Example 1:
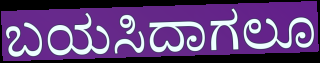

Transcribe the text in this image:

ಬಯಸಿದಾಗಲೂ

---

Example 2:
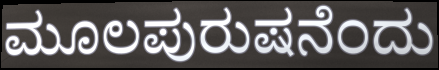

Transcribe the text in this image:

ಮೂಲಪುರುಷನೆಂದು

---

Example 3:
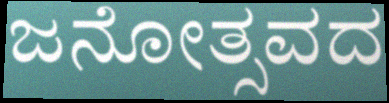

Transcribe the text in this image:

ಜನೋತ್ಸವದ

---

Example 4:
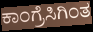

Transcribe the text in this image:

ಕಾಂಗ್ರೆಸಿಗಿಂತ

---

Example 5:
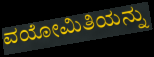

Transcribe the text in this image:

ವಯೋಮಿತಿಯನ್ನು